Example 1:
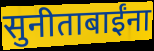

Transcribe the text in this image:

सुनीताबाईंना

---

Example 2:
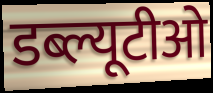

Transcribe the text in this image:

डब्ल्यूटीओ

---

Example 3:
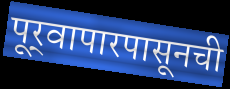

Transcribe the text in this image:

पूर्वापारपासूनची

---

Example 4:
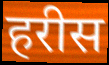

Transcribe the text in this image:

हरीस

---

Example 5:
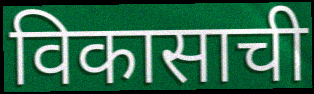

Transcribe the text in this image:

विकासाची